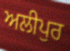
ਅਲੀਪੁਰ